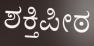
ಶಕ್ತಿಪೀಠ